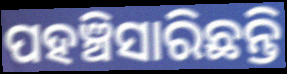
ପହଞ୍ଚିସାରିଛନ୍ତି